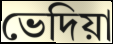
ভেদিয়া